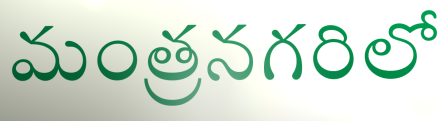
మంత్రనగరిలో